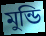
মুন্ডি